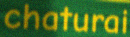
chaturai